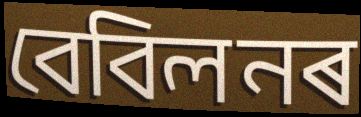
বেবিলনৰ